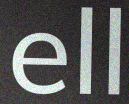
ell